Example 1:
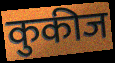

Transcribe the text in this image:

कुकीज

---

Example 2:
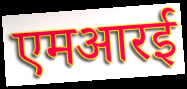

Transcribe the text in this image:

एमआरई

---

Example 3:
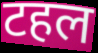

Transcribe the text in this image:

टहल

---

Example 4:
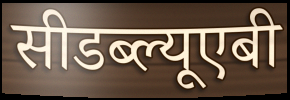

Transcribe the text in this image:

सीडब्ल्यूएबी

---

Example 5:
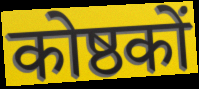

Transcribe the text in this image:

कोष्ठकों